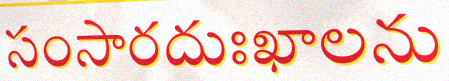
సంసారదుఃఖాలను